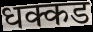
धक्कड